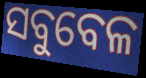
ସବୁବେଳ